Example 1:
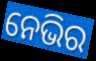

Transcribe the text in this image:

ନେଭିର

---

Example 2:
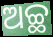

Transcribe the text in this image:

ଅଚ୍ଛ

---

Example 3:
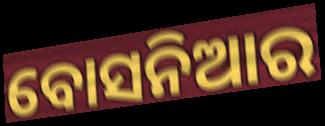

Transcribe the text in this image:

ବୋସନିଆର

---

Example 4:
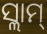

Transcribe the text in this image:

ସ୍ଲାମ୍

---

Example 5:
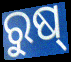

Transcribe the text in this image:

ରୁଷ୍